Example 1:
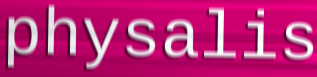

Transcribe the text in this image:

physalis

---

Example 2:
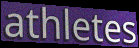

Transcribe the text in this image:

athletes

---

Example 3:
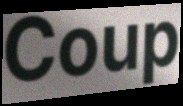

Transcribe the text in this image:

Coup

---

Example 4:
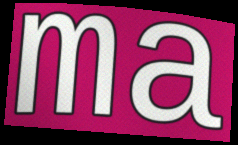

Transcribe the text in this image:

ma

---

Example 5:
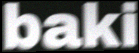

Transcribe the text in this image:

baki